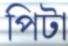
পিটা